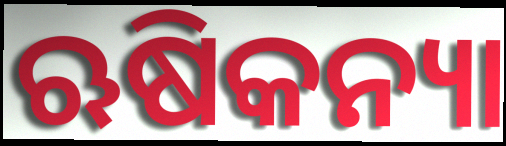
ଋଷିକନ୍ୟା